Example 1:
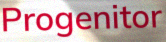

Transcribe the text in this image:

Progenitor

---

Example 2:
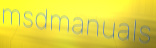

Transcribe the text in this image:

msdmanuals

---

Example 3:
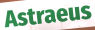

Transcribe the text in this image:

Astraeus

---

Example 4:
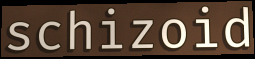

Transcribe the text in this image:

schizoid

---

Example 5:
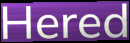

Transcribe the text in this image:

Hered